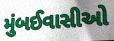
મુંબઈવાસીઓ